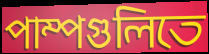
পাম্পগুলিতে